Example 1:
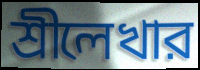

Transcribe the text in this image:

শ্রীলেখার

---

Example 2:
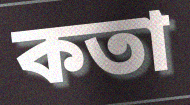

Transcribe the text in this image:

কতা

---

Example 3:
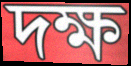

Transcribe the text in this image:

দক্ষ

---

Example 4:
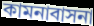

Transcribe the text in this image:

কামনাবাসনা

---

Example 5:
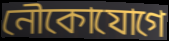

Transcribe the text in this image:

নৌকোযোগে